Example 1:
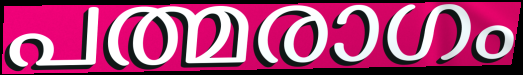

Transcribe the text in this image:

പത്മരാഗം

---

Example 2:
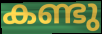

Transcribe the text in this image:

കണ്ടു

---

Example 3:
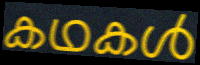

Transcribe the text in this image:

കഥകൾ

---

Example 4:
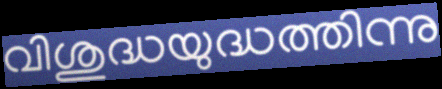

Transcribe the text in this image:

വിശുദ്ധയുദ്ധത്തിന്നു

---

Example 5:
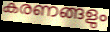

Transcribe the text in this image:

കരണങ്ങളും